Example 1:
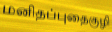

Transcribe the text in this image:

மனிதப்புதைகுழி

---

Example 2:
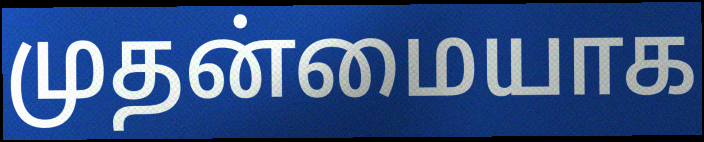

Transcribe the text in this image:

முதன்மையாக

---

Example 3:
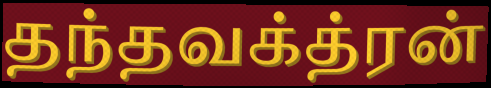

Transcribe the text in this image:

தந்தவக்த்ரன்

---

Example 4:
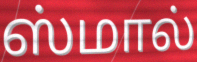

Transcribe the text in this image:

ஸ்மால்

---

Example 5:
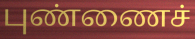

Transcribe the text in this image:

புண்ணைச்